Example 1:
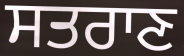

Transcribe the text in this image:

ਸਤਰਾਣ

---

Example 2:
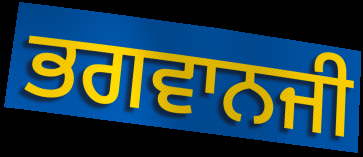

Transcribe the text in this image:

ਭਗਵਾਨਜੀ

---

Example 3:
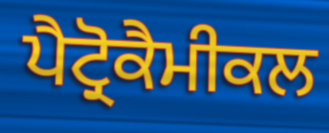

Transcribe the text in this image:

ਪੈਟ੍ਰੋਕੈਮੀਕਲ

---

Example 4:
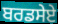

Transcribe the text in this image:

ਬਰਡਸੇਏ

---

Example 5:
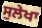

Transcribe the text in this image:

ਸੁਲੇਖਾ